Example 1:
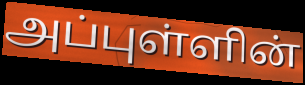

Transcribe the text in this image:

அப்புள்ளின்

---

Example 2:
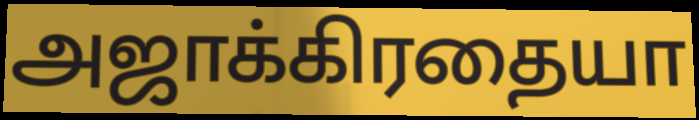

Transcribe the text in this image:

அஜாக்கிரதையா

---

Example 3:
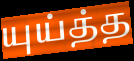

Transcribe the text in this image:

யுய்த்த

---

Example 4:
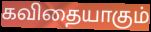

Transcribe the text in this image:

கவிதையாகும்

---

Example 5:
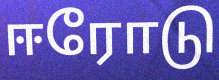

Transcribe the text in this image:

ஈரோடு